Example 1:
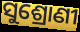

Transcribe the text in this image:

ସୁଶ୍ରୋଣୀ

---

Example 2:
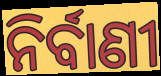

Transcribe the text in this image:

ନିର୍ବାଣୀ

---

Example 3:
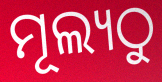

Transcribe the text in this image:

ମୂଲ୍ୟଠୁ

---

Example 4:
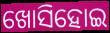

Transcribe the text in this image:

ଖୋସିହୋଇ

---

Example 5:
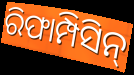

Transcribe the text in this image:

ରିଫାମ୍ପିସିନ୍